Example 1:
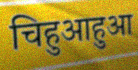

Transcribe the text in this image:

चिहुआहुआ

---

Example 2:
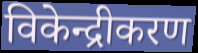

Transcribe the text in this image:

विकेन्द्रीकरण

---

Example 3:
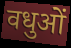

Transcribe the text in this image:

वधुओं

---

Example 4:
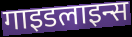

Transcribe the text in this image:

गाइडलाइन्स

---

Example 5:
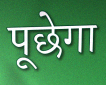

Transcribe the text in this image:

पूछेगा